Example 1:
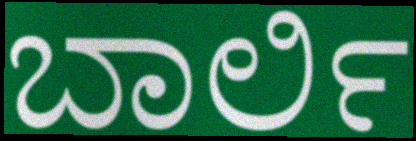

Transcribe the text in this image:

ಬಾರ್ಲಿ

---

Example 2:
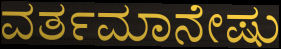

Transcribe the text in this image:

ವರ್ತಮಾನೇಷು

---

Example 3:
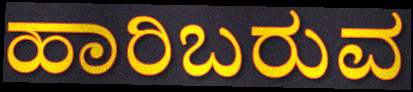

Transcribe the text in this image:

ಹಾರಿಬರುವ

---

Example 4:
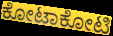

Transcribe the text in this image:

ಕೋಟಾಕೋಟಿ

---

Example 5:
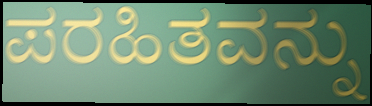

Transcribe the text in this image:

ಪರಹಿತವನ್ನು